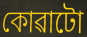
কোৱাটো